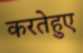
करतेहुए